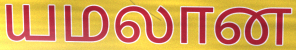
யமலான